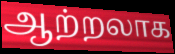
ஆற்றலாக